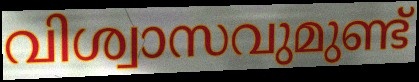
വിശ്വാസവുമുണ്ട്